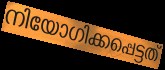
നിയോഗിക്കപ്പെട്ടത്